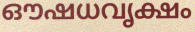
ഔഷധവൃക്ഷം